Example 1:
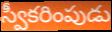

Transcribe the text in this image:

స్వీకరింపుడు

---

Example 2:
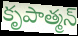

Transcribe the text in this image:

కృపాత్మన్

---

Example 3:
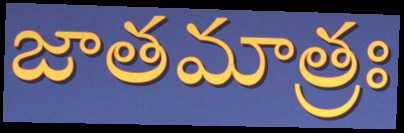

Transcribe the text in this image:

జాతమాత్రః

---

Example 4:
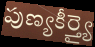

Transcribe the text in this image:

పుణ్యకీర్త్యై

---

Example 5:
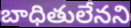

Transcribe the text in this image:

బాధితులేనని